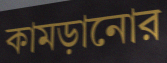
কামড়ানোর